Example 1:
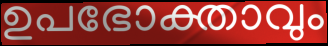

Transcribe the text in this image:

ഉപഭോക്താവും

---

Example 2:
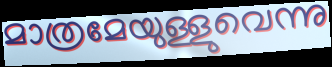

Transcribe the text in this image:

മാത്രമേയുള്ളുവെന്നു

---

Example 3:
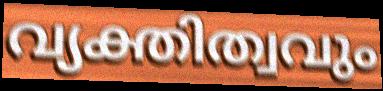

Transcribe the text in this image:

വ്യക്തിത്വവും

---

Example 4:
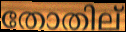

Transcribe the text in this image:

തോതില്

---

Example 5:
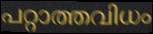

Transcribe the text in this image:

പറ്റാത്തവിധം